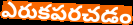
ఎరుకపరచడం